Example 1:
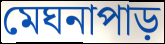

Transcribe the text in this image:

মেঘনাপাড়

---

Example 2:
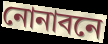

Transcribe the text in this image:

নোনাবনে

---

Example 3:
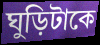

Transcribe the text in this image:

ঘুড়িটাকে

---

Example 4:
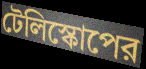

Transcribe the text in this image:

টেলিস্কোপের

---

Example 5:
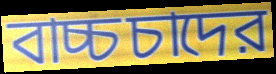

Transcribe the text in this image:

বাচ্চচাদের